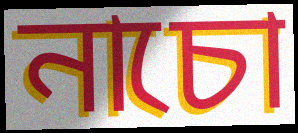
নাচো